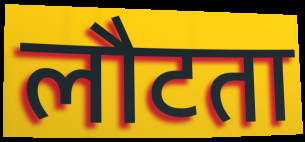
लौटता